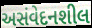
અસંવેદનશીલ